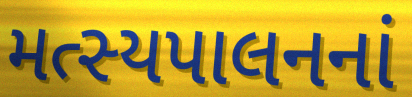
મત્સ્યપાલનનાં